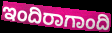
ಇಂದಿರಾಗಾಂದಿ